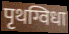
पृथग्विधा